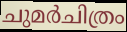
ചുമർചിത്രം